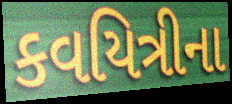
કવયિત્રીના